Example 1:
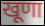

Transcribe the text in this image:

खूणा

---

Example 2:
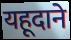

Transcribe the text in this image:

यहूदाने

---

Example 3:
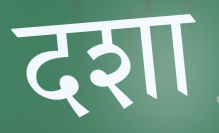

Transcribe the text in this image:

दशा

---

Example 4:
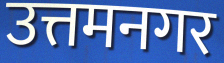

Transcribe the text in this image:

उत्तमनगर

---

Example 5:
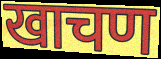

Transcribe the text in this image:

खाचण